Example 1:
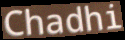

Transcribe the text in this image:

Chadhi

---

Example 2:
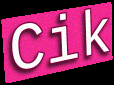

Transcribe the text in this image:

Cik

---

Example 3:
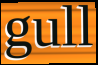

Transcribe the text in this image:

gull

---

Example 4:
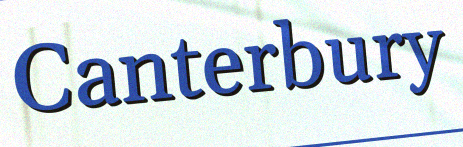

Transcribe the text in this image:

Canterbury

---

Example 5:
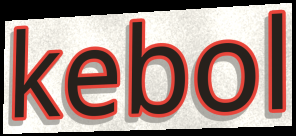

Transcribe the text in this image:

kebol